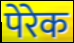
पेरेक